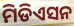
ମିଡିଏସନ